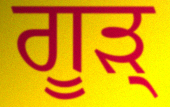
ਗੂੜ੍